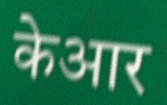
केआर